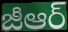
జీఆర్